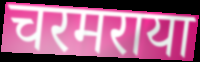
चरमराया